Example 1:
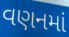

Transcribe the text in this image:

વણનમાં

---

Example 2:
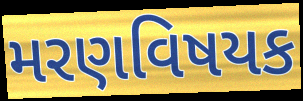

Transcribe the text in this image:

મરણવિષયક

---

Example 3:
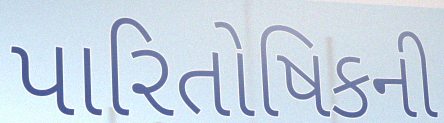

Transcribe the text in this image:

પારિતોષિકની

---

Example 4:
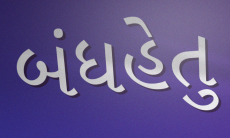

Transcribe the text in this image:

બંધહેતુ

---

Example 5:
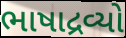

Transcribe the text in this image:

ભાષાદ્રવ્યો